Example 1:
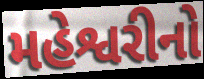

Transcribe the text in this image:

મહેશ્વરીનો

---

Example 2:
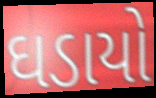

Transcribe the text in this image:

ઘડાયો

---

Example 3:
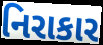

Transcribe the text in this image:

નિરાકાર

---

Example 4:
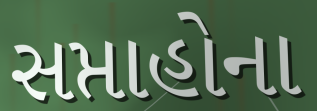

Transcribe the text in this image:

સપ્તાહોના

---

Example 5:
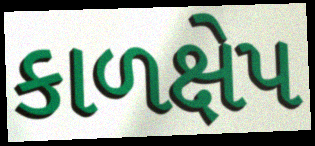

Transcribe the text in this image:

કાળક્ષેપ